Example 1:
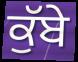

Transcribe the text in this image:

ਕੁੱਬੇ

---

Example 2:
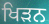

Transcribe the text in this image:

ਖਿੜਨ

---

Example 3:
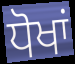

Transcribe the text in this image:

ਧੋਖਾਂ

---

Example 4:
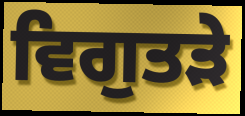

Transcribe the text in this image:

ਵਿਗੁਤੜੇ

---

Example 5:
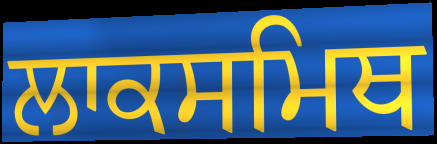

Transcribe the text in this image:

ਲਾਕਸਮਿਥ